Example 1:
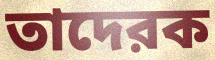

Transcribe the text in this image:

তাদেরক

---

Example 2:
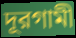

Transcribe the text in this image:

দূরগামী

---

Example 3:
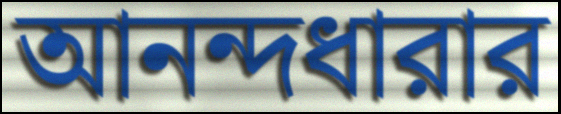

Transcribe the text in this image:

আনন্দধারার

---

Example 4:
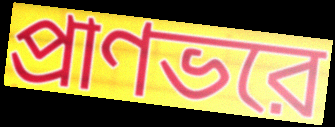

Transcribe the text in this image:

প্রাণভরে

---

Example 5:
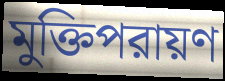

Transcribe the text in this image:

মুক্তিপরায়ণ